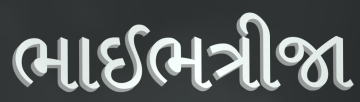
ભાઈભત્રીજા